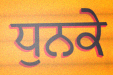
ਧੁਨਕੇ